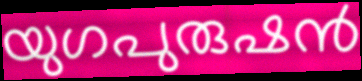
യുഗപുരുഷൻ